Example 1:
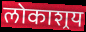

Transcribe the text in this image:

लोकाश्रय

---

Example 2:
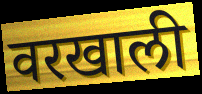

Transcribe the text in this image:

वरखाली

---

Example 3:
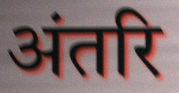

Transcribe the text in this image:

अंतरि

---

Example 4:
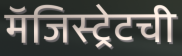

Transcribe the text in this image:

मॅजिस्ट्रेटची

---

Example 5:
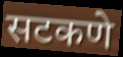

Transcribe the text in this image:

सटकणे